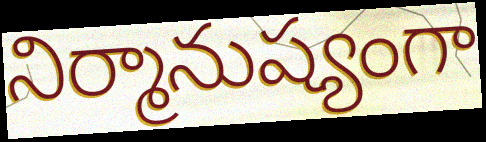
నిర్మానుష్యంగా